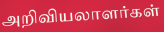
அறிவியலாளர்கள்